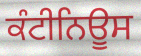
ਕੰਟੀਨਿਊਸ